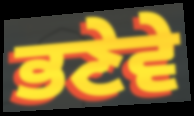
ਭਣੇਵੇ